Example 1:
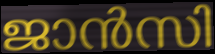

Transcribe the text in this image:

ജാൻസി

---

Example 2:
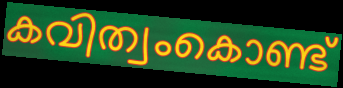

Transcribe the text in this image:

കവിത്വംകൊണ്ട്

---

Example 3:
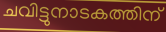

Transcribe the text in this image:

ചവിട്ടുനാടകത്തിന്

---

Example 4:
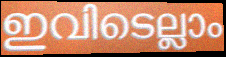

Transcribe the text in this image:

ഇവിടെല്ലാം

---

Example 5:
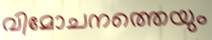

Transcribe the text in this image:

വിമോചനത്തെയും